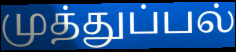
முத்துப்பல்